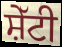
ਸ਼ੇੱਟੀ